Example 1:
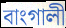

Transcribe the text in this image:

বাংগালী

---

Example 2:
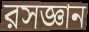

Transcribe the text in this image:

রসজ্ঞান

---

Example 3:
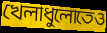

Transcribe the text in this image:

খেলাধুলোতেও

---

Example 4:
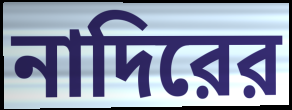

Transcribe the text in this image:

নাদিরের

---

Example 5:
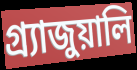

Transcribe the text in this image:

গ্র্যাজুয়ালি